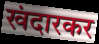
खंदारकर